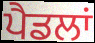
ਪੈਡਲਾਂ